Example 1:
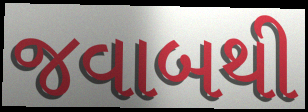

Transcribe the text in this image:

જવાબથી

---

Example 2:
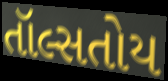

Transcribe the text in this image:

તૉલ્સતોય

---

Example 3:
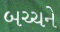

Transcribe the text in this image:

બચ્ચને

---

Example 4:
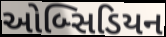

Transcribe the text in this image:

ઓબ્સિડિયન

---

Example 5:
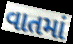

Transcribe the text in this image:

વાતમાં